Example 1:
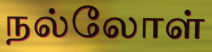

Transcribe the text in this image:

நல்லோள்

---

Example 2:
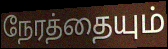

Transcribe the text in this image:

நேரத்தையும்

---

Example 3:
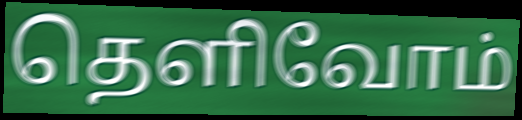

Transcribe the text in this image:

தெளிவோம்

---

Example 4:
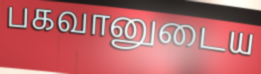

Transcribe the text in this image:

பகவானுடைய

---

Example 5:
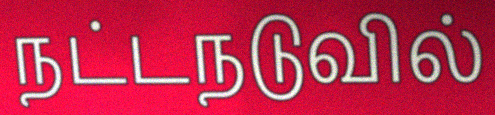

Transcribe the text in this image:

நட்டநடுவில்